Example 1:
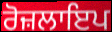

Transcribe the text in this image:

ਰੋਜ਼ਲਾਇਪ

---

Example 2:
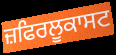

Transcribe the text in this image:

ਜ਼ਫਿਰਲੂਕਾਸਟ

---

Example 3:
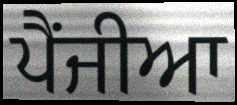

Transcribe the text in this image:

ਪੈਂਜੀਆ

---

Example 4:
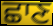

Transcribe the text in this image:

ਛਾਣ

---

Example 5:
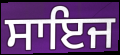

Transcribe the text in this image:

ਸਾਇਜ